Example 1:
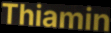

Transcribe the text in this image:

Thiamin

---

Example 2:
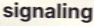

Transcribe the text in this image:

signaling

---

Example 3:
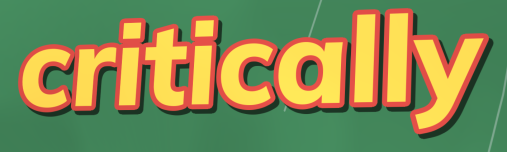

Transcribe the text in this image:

critically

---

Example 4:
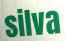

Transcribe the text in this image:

silva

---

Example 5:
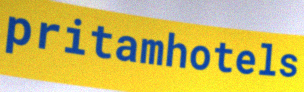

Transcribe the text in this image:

pritamhotels